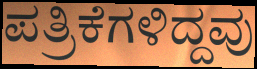
ಪತ್ರಿಕೆಗಳಿದ್ದವು